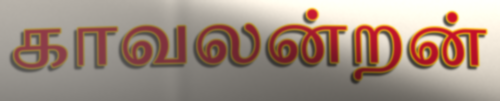
காவலன்றன்